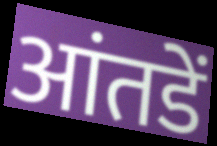
आंतडें